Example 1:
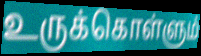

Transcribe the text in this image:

உருக்கொள்ளும்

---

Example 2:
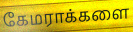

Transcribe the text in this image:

கேமராக்களை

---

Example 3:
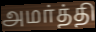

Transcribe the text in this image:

அமர்த்தி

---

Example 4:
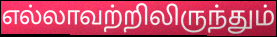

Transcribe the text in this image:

எல்லாவற்றிலிருந்தும்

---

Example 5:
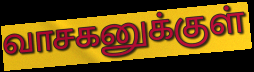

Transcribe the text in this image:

வாசகனுக்குள்